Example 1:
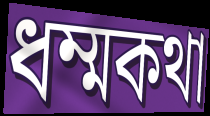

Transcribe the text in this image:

ধম্মকথা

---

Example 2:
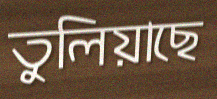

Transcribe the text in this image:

তুলিয়াছে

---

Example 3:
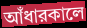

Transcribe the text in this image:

আঁধারকালে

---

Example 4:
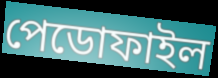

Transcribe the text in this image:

পেডোফাইল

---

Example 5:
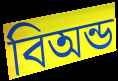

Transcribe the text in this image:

বিঅন্ড